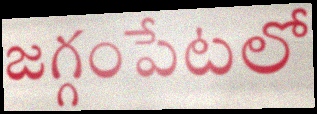
జగ్గంపేటలో